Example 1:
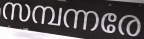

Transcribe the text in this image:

സമ്പന്നരേ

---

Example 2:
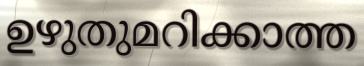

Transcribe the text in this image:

ഉഴുതുമറിക്കാത്ത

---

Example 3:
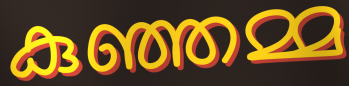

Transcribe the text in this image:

കുഞ്ഞമ്മ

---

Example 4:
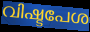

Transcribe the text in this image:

വിഷ്ടപേശ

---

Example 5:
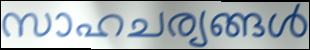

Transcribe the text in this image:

സാഹചര്യങ്ങൾ